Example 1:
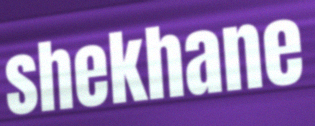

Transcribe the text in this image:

shekhane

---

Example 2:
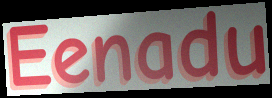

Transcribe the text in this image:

Eenadu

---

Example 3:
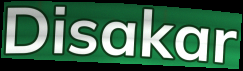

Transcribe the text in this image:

Disakar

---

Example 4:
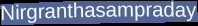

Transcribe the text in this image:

Nirgranthasampraday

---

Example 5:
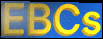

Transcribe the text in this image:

EBCs